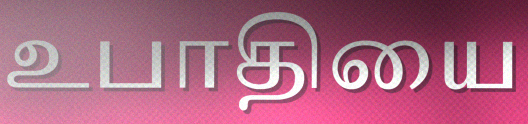
உபாதியை